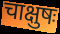
चाक्षुषः